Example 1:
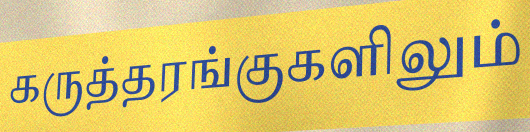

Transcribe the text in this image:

கருத்தரங்குகளிலும்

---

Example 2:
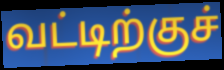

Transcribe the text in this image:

வட்டிற்குச்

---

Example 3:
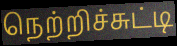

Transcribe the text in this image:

நெற்றிச்சுட்டி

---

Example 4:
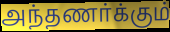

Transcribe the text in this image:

அந்தணர்க்கும்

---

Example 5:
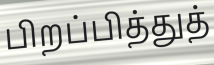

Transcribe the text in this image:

பிறப்பித்துத்